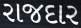
રાજદાર